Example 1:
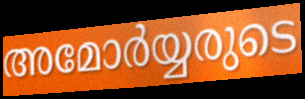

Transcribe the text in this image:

അമോർയ്യരുടെ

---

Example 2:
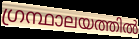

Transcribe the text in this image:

ഗ്രന്ഥാലയത്തിൽ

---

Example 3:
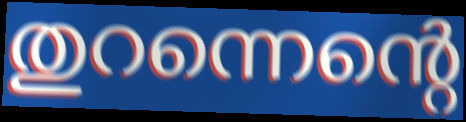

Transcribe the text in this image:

തുറന്നെന്റെ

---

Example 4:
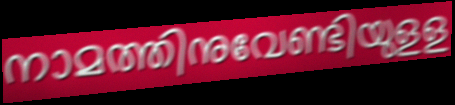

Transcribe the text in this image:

നാമത്തിനുവേണ്ടിയുളള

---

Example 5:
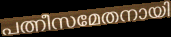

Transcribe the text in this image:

പത്നീസമേതനായി